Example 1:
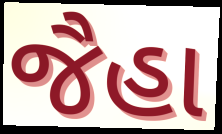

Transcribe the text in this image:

જૈહા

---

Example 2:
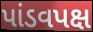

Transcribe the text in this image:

પાંડવપક્ષ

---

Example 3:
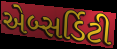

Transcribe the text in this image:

એબ્સર્ડિટી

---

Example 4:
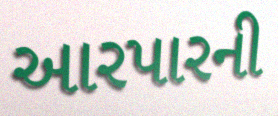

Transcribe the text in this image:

આરપારની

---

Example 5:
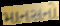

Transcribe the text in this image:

માનસનો